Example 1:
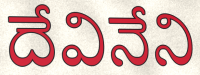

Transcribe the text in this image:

దేవినేని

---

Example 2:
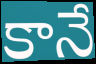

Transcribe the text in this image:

కానే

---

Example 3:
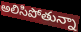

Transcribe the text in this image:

అలిసిపోతున్నా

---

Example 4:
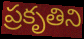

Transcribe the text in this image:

ప్రకృతిని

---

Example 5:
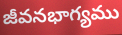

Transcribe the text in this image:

జీవనభాగ్యము